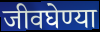
जीवघेण्या